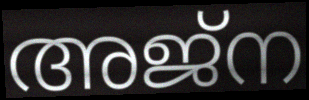
അജ്ന